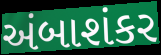
અંબાશંકર